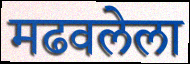
मढवलेला